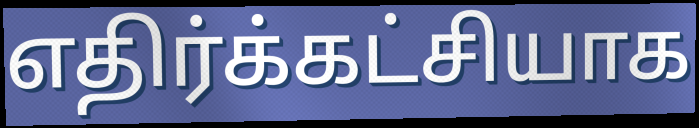
எதிர்க்கட்சியாக